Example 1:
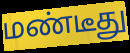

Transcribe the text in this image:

மண்டீது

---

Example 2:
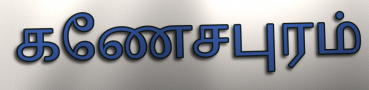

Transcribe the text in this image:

கணேசபுரம்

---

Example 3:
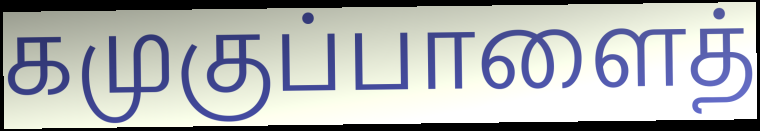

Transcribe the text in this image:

கமுகுப்பாளைத்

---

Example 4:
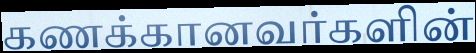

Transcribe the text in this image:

கணக்கானவர்களின்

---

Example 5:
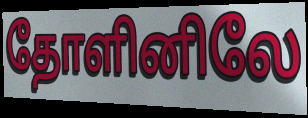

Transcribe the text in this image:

தோளினிலே